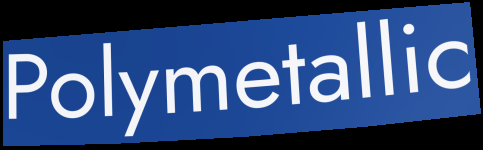
Polymetallic